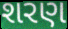
શરણ